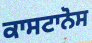
ਕਾਸਟਾਨੋਸ